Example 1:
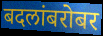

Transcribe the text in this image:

बदलांबरोबर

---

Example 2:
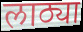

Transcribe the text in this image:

लाठ्या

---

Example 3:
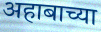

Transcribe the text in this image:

अहाबाच्या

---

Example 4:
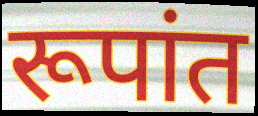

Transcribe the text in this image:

रूपांत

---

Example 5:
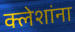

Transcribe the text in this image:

क्लेशांना